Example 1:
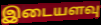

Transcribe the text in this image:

இடையளவு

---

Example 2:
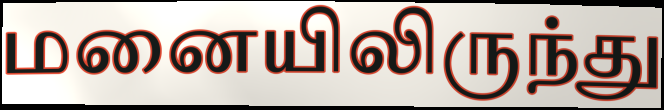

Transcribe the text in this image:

மனையிலிருந்து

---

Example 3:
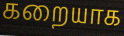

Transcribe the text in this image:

கறையாக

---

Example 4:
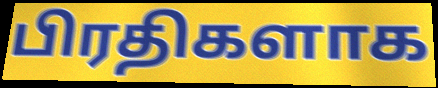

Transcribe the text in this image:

பிரதிகளாக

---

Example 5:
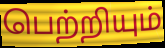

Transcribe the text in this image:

பெற்றியும்